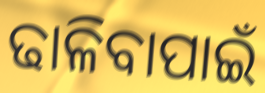
ଢାଳିବାପାଇଁ